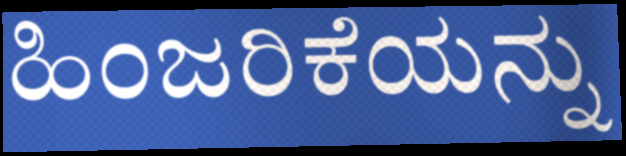
ಹಿಂಜರಿಕೆಯನ್ನು